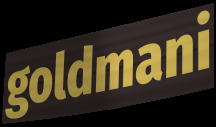
goldmani